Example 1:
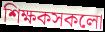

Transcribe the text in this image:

শিক্ষকসকলো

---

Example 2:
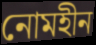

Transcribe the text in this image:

নোমহীন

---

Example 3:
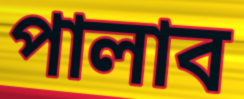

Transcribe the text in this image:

পালাব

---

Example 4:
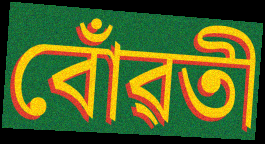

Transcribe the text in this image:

বোঁৱতী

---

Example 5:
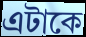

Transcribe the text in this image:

এটাকে